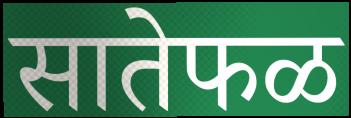
सातेफळ